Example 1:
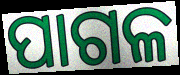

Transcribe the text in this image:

ପାଗଳ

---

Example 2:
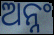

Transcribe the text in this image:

ଅନ୍ନଂ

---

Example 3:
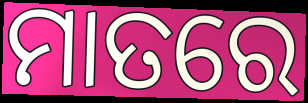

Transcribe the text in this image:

ମାତରେ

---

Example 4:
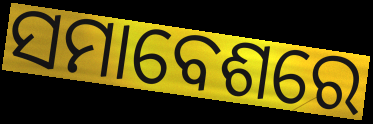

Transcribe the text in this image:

ସମାବେଶରେ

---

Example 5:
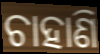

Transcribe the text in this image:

ଚାହାଣି